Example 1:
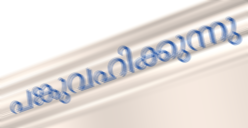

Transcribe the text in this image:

പങ്കുവഹിക്കുന്നു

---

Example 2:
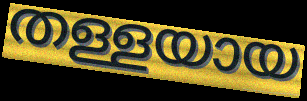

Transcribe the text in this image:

തള്ളയായ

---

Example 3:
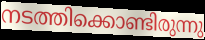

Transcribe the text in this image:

നടത്തിക്കൊണ്ടിരുന്നു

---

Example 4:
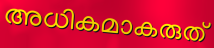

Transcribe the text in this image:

അധികമാകരുത്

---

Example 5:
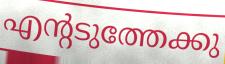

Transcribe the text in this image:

എന്റടുത്തേക്കു